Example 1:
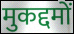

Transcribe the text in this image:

मुकद्दमों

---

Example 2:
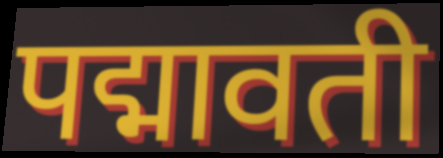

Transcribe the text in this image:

पद्मावती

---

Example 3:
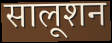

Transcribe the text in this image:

सालूशन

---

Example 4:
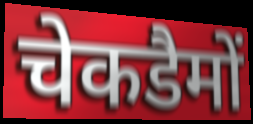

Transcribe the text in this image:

चेकडैमों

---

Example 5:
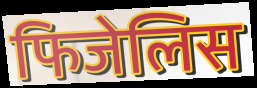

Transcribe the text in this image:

फिजेलिस